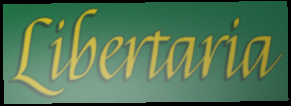
Libertaria